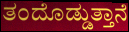
ತಂದೊಡ್ಡುತ್ತಾನೆ